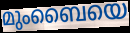
മുംബൈയെ